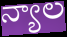
న్యాల